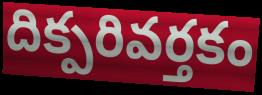
దిక్పరివర్తకం